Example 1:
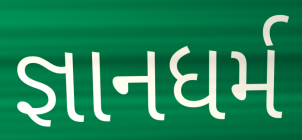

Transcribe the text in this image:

જ્ઞાનધર્મ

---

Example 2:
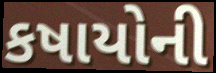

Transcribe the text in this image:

કષાયોની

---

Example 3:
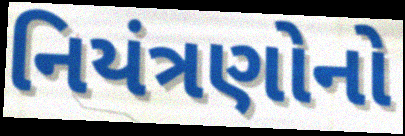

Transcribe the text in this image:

નિયંત્રણોનો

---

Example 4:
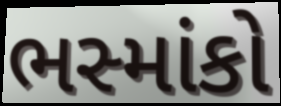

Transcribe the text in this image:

ભસ્માંકો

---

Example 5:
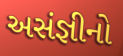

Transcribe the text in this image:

અસંજ્ઞીનો